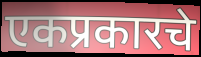
एकप्रकारचे